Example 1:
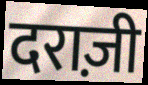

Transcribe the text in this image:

दराज़ी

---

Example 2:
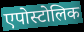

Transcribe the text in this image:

एपोस्टोलिक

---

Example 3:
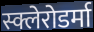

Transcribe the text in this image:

स्क्लेरोडर्मा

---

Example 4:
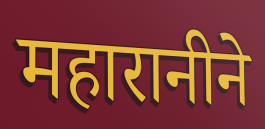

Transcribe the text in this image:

महारानीने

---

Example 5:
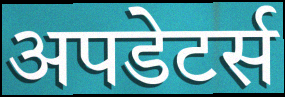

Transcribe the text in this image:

अपडेटर्स